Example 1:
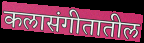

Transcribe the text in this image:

कलासंगीतातील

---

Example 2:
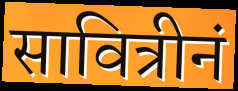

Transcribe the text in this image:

सावित्रीनं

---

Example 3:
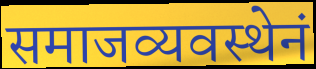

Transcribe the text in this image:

समाजव्यवस्थेनं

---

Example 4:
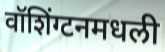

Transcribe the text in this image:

वॉशिंग्टनमधली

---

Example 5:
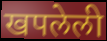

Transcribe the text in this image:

खपलेली